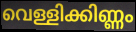
വെള്ളിക്കിണ്ണം